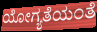
ಯೋಗ್ಯತೆಯಂತೆ